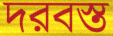
দরবস্ত